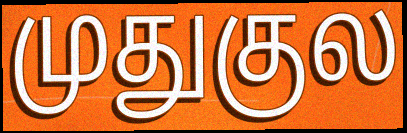
முதுகுல